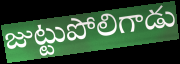
జుట్టుపోలిగాడు